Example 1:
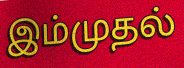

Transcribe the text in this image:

இம்முதல்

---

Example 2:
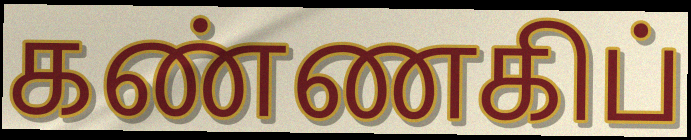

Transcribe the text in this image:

கண்ணகிப்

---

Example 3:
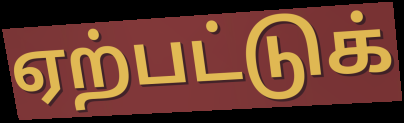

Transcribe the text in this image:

ஏற்பட்டுக்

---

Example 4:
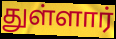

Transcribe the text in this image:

துள்ளார்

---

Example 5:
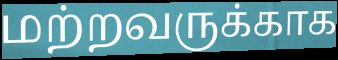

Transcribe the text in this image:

மற்றவருக்காக